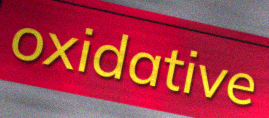
oxidative